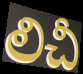
లిచీ